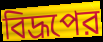
বিদ্রূপের